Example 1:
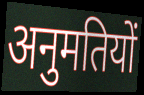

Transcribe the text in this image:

अनुमतियों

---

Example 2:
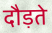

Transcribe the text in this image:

दौड़ते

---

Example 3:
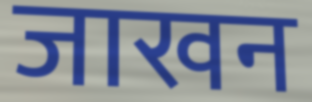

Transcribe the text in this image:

जाखन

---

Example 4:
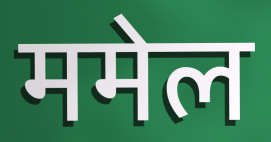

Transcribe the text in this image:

ममेल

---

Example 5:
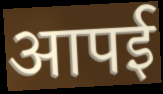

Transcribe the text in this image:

आपई